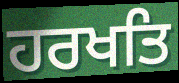
ਹਰਖਤਿ